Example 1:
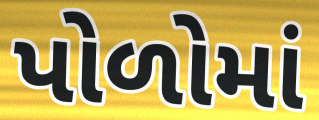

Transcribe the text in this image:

પોળોમાં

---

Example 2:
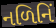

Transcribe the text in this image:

નળિનિં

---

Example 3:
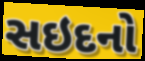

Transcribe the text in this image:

સઇદનો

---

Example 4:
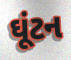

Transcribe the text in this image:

ઘૂંટન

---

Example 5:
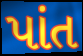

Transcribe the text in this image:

પાંત